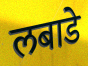
लबाडे